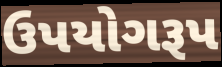
ઉપયોગરૂપ